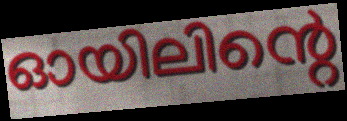
ഓയിലിന്റെ